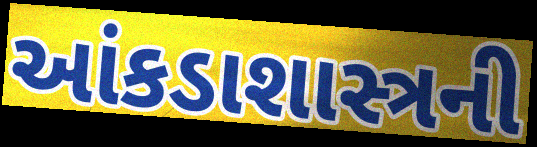
આંકડાશાસ્ત્રની